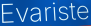
Evariste